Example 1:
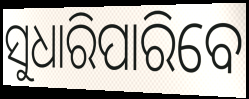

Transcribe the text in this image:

ସୁଧାରିପାରିବେ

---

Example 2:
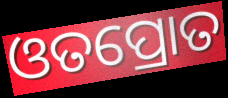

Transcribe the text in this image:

ଓତପ୍ରୋତ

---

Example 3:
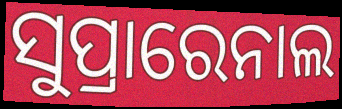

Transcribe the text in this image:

ସୁପ୍ରାରେନାଲ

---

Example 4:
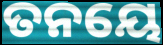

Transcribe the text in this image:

ତନୟେ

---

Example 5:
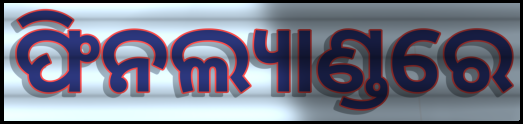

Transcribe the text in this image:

ଫିନଲ୍ୟାଣ୍ଡରେ